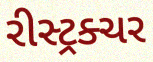
રીસ્ટ્રક્ચર